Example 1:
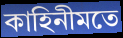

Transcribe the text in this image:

কাহিনীমতে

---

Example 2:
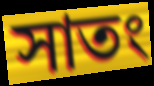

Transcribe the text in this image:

সাতং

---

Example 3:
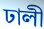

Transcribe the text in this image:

ঢালী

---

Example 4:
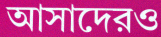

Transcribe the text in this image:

আসাদেরও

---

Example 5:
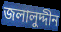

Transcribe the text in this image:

জলালুদ্দীন